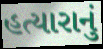
હત્યારાનું